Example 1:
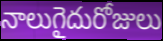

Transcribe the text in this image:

నాలుగైదురోజులు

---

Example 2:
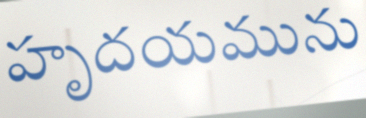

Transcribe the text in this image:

హృదయమును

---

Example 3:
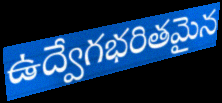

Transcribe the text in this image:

ఉద్వేగభరితమైన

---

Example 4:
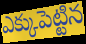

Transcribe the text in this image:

ఎక్కుపెట్టిన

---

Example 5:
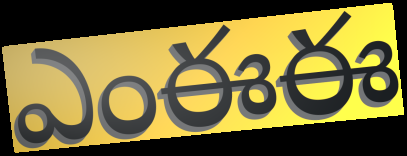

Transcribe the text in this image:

ఎంఈఈ